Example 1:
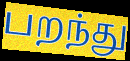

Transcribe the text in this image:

பறந்து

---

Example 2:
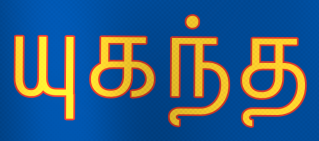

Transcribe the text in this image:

யுகந்த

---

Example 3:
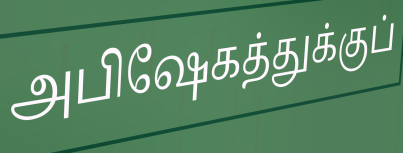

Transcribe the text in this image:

அபிஷேகத்துக்குப்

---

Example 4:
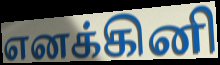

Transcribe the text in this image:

எனக்கினி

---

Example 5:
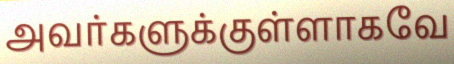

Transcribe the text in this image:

அவர்களுக்குள்ளாகவே